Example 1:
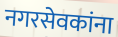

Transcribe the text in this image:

नगरसेवकांना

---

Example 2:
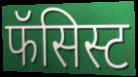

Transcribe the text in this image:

फॅसिस्ट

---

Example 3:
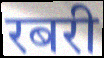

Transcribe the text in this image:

रबरी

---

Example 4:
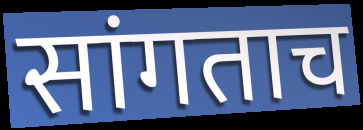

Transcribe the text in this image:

सांगताच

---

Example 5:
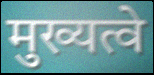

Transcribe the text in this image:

मुख्यत्वे